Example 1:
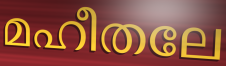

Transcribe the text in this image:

മഹീതലേ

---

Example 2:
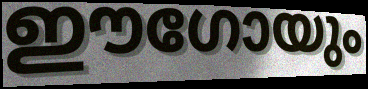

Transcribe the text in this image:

ഈഗോയും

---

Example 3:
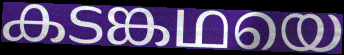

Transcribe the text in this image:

കടങ്കഥയെ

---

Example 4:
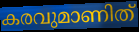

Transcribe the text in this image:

കരവുമാണിത്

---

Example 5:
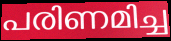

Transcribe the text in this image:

പരിണമിച്ച